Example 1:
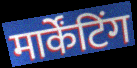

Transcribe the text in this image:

मार्केंटिंग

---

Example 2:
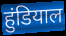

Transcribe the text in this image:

हुंडियाल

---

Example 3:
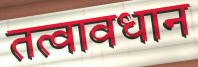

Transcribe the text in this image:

तत्वावधान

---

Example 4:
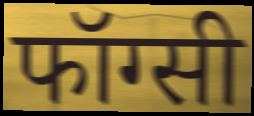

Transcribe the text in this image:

फॉग्सी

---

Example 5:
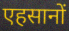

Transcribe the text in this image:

एहसानों